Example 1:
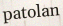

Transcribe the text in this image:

patolan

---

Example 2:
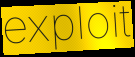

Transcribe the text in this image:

exploit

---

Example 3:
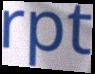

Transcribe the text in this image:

rpt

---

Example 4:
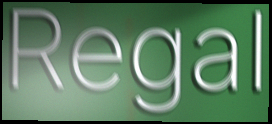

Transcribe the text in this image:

Regal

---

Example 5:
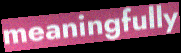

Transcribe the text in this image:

meaningfully